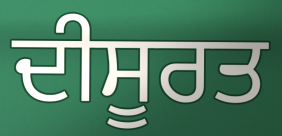
ਦੀਸੂਰਤ